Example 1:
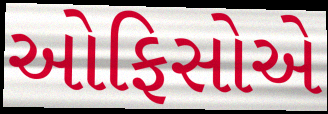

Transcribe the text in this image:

ઓફિસોએ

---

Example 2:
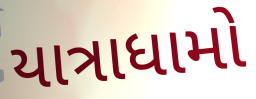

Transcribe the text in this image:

યાત્રાધામો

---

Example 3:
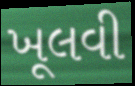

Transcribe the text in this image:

ખૂલવી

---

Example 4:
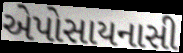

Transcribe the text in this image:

એપોસાયનાસી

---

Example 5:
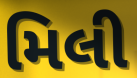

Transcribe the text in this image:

મિલી